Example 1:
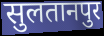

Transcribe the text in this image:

सुलतानपुर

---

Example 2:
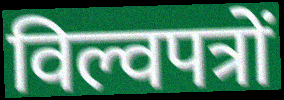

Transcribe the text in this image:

विल्वपत्रों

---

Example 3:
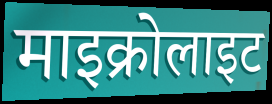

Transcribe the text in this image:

माइक्रोलाइट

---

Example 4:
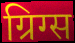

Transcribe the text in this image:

ग्रिग्स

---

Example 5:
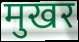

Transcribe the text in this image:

मुखर